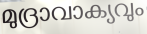
മുദ്രാവാക്യവും